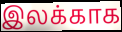
இலக்காக